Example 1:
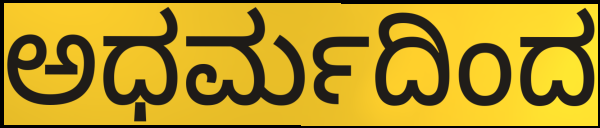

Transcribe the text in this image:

ಅಧರ್ಮದಿಂದ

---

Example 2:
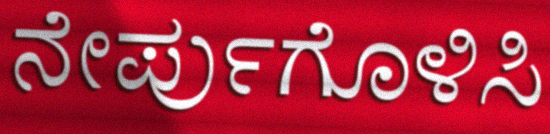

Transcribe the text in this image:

ನೇರ್ಪುಗೊಳಿಸಿ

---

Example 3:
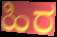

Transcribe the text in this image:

ಹಿರ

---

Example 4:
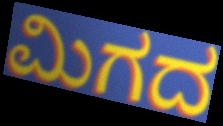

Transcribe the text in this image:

ಮಿಗದ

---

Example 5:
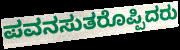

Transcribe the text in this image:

ಪವನಸುತರೊಪ್ಪಿದರು